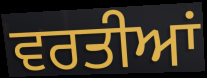
ਵਰਤੀਆਂ